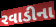
રવાડીના